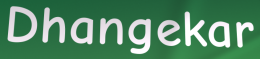
Dhangekar